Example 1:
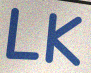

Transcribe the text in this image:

LK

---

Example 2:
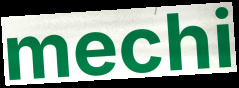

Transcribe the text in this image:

mechi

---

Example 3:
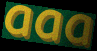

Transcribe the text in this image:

aaa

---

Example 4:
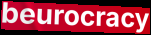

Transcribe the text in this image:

beurocracy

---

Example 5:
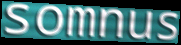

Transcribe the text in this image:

somnus